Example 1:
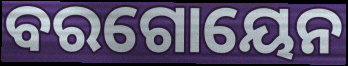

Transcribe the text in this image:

ବରଗୋୟେନ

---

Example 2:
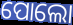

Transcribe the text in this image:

ପୋଲୋ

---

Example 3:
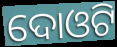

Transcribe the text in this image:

ଦୋଓଟି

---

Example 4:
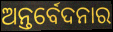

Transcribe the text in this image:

ଅନ୍ତର୍ବେଦନାର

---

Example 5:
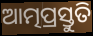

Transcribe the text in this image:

ଆତ୍ମପ୍ରସ୍ତୁତି